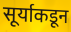
सूर्याकडून